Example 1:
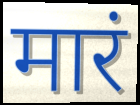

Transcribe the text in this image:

मारं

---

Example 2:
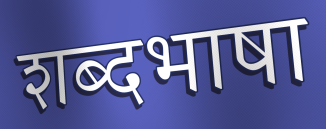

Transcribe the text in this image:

शब्दभाषा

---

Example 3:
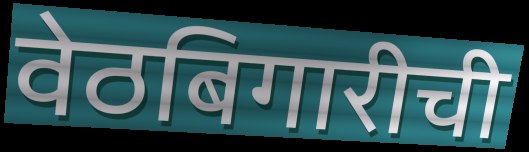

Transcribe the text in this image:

वेठबिगारीची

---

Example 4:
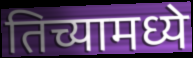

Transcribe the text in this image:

तिच्यामध्ये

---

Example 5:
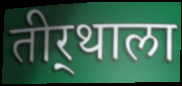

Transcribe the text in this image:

तीर्थाला